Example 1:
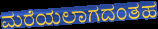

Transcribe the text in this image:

ಮರೆಯಲಾಗದಂತಹ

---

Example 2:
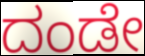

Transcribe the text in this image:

ದಂಡೇ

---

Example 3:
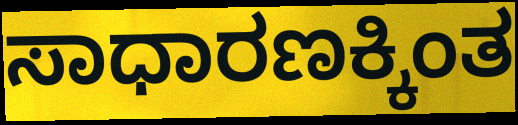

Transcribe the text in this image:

ಸಾಧಾರಣಕ್ಕಿಂತ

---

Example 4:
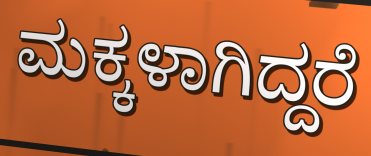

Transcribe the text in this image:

ಮಕ್ಕಳಾಗಿದ್ದರೆ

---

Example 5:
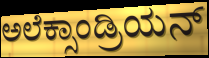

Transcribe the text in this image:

ಅಲೆಕ್ಸಾಂಡ್ರಿಯನ್